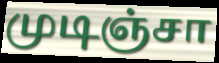
முடிஞ்சா